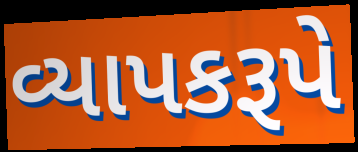
વ્યાપકરૂપે